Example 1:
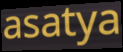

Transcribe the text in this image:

asatya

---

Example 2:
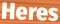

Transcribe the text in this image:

Heres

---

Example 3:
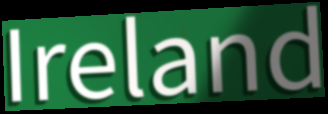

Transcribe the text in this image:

Ireland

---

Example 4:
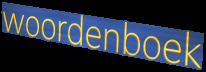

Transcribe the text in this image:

woordenboek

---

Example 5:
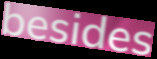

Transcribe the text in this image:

besides